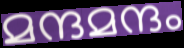
മന്ദമന്ദം